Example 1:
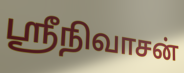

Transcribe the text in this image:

ஸ்ரீநிவாசன்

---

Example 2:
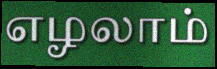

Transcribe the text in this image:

எழலாம்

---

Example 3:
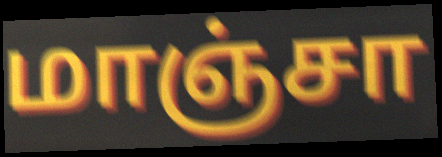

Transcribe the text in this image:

மாஞ்சா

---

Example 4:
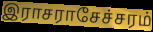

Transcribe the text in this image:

இராசராசேச்சரம்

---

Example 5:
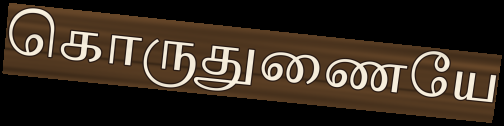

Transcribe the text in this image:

கொருதுணையே